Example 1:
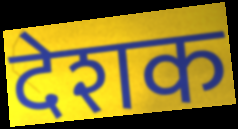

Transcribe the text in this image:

देशक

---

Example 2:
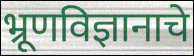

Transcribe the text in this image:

भ्रूणविज्ञानाचे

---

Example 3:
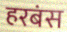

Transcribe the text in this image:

हरबंस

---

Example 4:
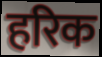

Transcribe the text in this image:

हरिक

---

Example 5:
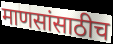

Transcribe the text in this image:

माणसांसाठीच